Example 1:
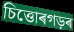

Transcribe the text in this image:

চিত্তোৰগড়ৰ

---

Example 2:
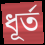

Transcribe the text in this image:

ধূৰ্ত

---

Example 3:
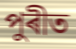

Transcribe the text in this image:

পুৰীত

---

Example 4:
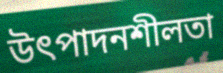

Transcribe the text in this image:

উৎপাদনশীলতা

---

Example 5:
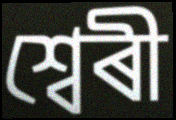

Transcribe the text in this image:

শ্বেৰী